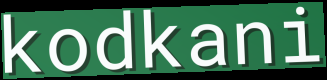
kodkani